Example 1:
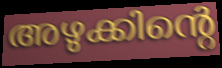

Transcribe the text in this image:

അഴുക്കിന്റെ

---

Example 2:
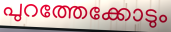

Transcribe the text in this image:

പുറത്തേക്കോടും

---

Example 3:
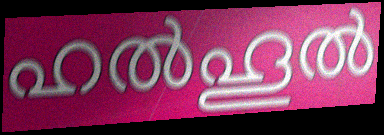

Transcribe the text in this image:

ഹൽഹൂൽ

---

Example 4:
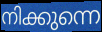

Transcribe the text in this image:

നിക്കുന്നെ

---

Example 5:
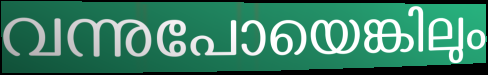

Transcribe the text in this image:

വന്നുപോയെങ്കിലും